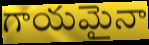
గాయమైనా